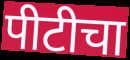
पीटीचा